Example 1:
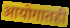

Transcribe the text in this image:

आयोगातही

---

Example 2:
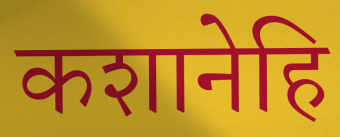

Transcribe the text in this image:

कशानेहि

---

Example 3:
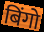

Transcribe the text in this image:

बिंगो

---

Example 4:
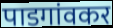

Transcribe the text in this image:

पाडगांवकर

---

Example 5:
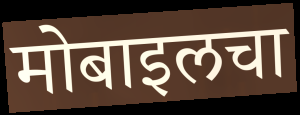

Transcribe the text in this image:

मोबाइलचा